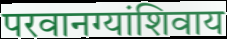
परवानग्यांशिवाय